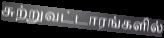
சுற்றுவட்டாரங்களில்